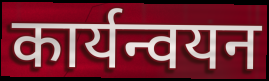
कार्यन्वयन